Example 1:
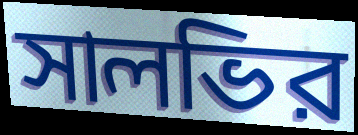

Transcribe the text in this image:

সালভির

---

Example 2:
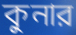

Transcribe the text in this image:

কুনার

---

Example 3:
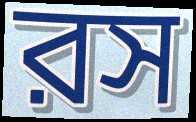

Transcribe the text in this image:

রস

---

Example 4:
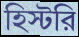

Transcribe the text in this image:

হিস্টরি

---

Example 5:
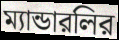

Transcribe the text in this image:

ম্যান্ডারলির